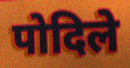
पोदिले